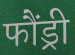
फौंड्री